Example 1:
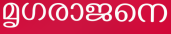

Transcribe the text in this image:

മൃഗരാജനെ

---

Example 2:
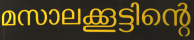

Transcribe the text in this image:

മസാലക്കൂട്ടിന്റെ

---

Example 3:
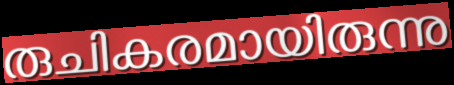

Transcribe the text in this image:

രുചികരമായിരുന്നു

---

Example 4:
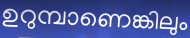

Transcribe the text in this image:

ഉറുമ്പാണെങ്കിലും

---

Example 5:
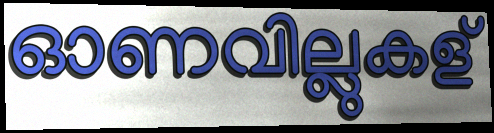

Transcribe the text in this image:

ഓണവില്ലുകള്